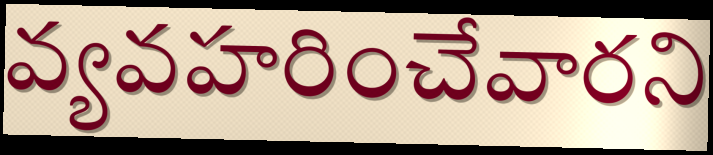
వ్యవహరించేవారని